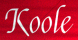
Koole